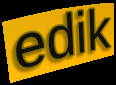
edik